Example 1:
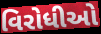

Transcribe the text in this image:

વિરોધીઓ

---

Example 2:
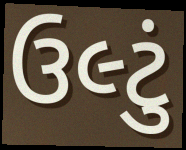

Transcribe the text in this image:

ઉલ્ટું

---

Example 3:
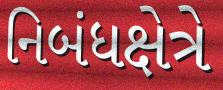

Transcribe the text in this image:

નિબંધક્ષેત્રે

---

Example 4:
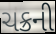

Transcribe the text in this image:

ચક્રની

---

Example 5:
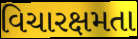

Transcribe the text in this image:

વિચારક્ષમતા